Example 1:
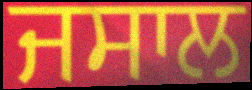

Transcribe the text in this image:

ਜਸਾਲ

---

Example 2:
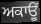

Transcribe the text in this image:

ਅਕਾਊਂ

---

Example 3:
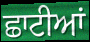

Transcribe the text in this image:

ਛਾਟੀਆਂ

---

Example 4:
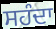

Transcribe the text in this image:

ਸਹੰਦਾ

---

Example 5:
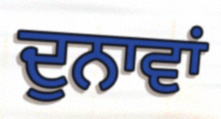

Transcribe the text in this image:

ਦੁਨਾਵਾਂ